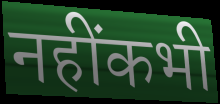
नहींकभी